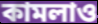
কামলাও